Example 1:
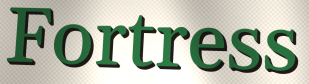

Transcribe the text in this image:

Fortress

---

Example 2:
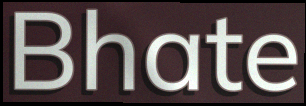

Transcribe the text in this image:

Bhate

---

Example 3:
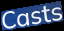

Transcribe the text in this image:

Casts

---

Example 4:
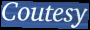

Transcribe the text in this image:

Coutesy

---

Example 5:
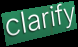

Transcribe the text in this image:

clarify